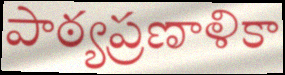
పాఠ్యప్రణాళికా